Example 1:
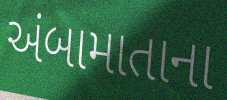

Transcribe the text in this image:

અંબામાતાના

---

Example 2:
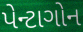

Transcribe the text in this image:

પેન્ટાગોન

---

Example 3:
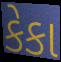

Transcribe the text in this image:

કેકા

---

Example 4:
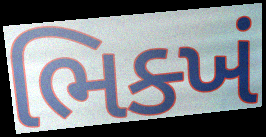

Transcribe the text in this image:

ભિક્ખં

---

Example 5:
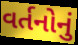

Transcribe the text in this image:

વર્તનોનું